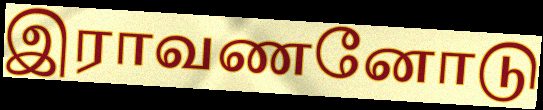
இராவணனோடு